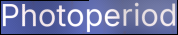
Photoperiod